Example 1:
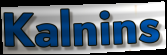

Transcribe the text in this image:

Kalnins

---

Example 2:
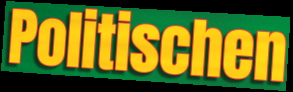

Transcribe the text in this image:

Politischen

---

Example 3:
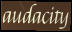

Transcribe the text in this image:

audacity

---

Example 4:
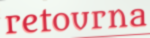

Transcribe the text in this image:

retourna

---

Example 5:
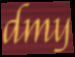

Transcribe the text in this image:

dmy